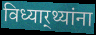
विध्यार्थ्यांना